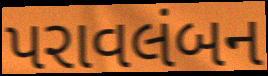
પરાવલંબન